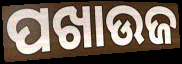
ପଖାଉଜ